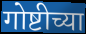
गोष्टीच्या